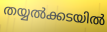
തയ്യൽക്കടയിൽ